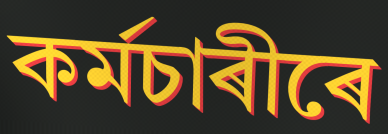
কৰ্মচাৰীৰে